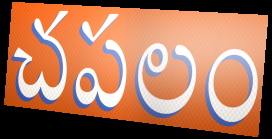
చపలం